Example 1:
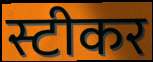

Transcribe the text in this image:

स्टीकर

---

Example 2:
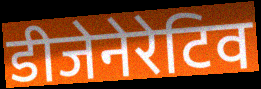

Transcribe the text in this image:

डीजेनेरेटिव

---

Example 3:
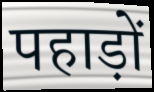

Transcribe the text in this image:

पहाड़ों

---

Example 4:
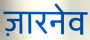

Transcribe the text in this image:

ज़ारनेव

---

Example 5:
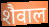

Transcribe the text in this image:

शैवाल